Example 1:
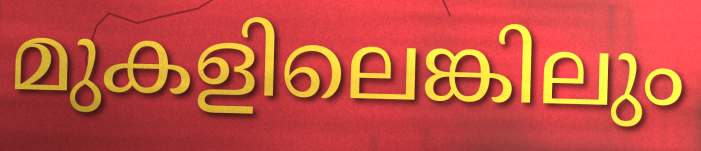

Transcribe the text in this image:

മുകളിലെങ്കിലും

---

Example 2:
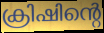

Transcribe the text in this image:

ക്രിഷിന്റെ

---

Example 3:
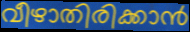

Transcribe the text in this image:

വീഴാതിരിക്കാൻ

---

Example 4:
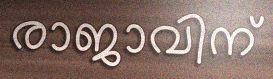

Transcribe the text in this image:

രാജാവിന്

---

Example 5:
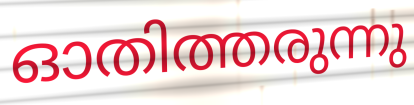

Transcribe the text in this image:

ഓതിത്തരുന്നു